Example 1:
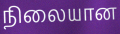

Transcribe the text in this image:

நிலையான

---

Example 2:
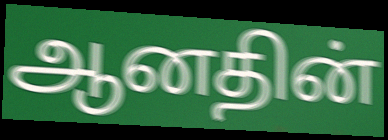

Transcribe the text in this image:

ஆனதின்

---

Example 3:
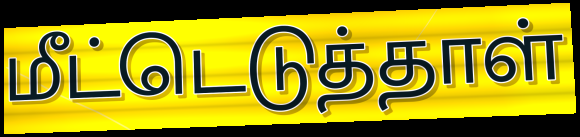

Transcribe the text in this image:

மீட்டெடுத்தாள்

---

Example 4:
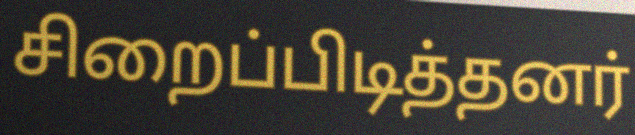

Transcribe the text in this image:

சிறைப்பிடித்தனர்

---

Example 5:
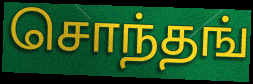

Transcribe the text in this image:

சொந்தங்